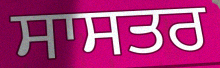
ਸਾਸਤਰ